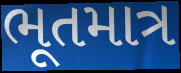
ભૂતમાત્ર